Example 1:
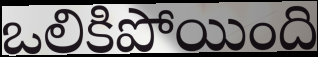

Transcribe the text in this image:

ఒలికిపోయింది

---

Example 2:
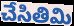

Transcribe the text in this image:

చేసితిమి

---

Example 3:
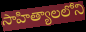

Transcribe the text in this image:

సాహిత్యాలలోని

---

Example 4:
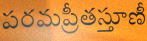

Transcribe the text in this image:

పరమప్రీతస్తూణీ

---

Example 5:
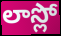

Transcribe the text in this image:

లాస్లో